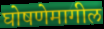
घोषणेमागील